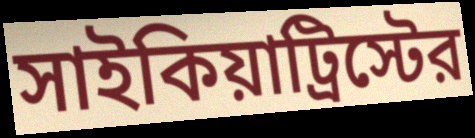
সাইকিয়াট্রিস্টের